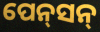
ପେନ୍‍ସନ୍